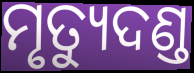
ମୃତ୍ୟୁଦଣ୍ଡ